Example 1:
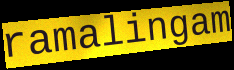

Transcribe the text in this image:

ramalingam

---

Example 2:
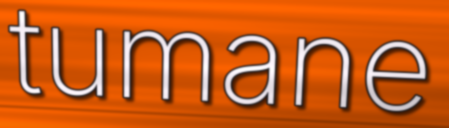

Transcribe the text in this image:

tumane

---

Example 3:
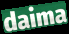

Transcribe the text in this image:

daima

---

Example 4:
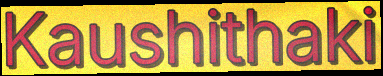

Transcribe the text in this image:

Kaushithaki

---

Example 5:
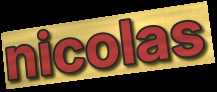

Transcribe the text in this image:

nicolas